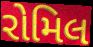
રોમિલ